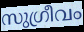
സുഗ്രീവം